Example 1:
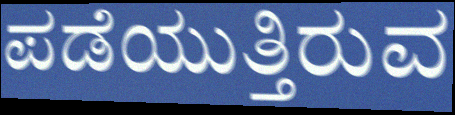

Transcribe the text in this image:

ಪಡೆಯುತ್ತಿರುವ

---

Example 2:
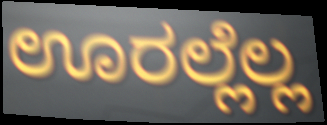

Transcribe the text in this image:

ಊರಲ್ಲೆಲ್ಲ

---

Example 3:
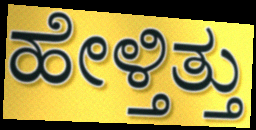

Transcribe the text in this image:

ಹೇಳ್ತಿತ್ತು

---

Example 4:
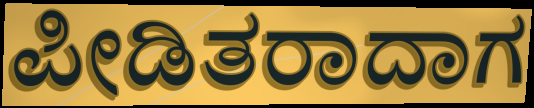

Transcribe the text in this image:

ಪೀಡಿತರಾದಾಗ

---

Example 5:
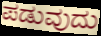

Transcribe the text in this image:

ಪಡುವುದು